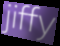
jiffy